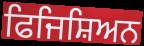
ਫਿਜਿਸ਼ਿਅਨ